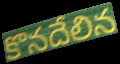
కొనదేలిన